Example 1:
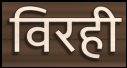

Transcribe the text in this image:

विरही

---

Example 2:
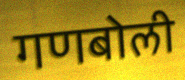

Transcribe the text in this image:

गणबोली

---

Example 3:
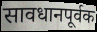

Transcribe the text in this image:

सावधानपूर्वक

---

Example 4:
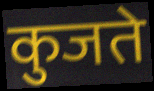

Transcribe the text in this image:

कुजते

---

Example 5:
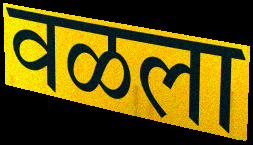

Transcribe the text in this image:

वळला